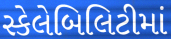
સ્કેલેબિલિટીમાં